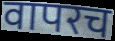
वापरच